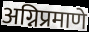
अग्निप्रमाणे